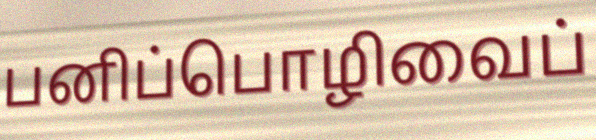
பனிப்பொழிவைப்